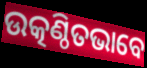
ଉତ୍କଣ୍ଠିତଭାବେ